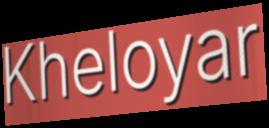
Kheloyar